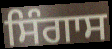
ਸਿੰਗਾਸ